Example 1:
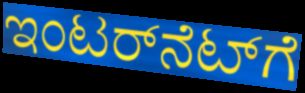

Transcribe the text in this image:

ಇಂಟರ್‌ನೆಟ್‌ಗೆ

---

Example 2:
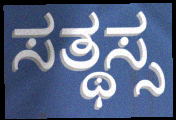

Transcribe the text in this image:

ಸತ್ಥಸ್ಸ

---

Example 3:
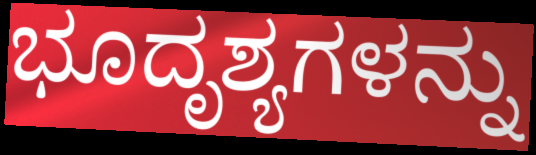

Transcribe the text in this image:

ಭೂದೃಶ್ಯಗಳನ್ನು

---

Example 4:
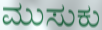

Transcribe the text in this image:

ಮುಸುಕು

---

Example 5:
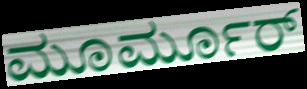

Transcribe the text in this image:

ಮೂರ್ಮೂರ್